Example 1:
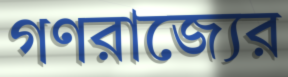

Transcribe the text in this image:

গণরাজ্যের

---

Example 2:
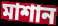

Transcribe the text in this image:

মাশান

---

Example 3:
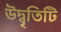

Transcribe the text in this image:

উদ্বৃতিটি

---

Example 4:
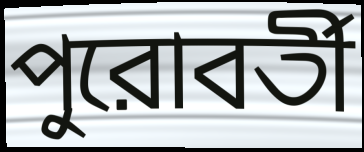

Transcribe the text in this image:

পুরোবর্তী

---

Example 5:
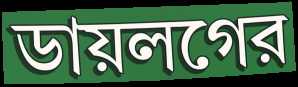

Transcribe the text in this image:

ডায়লগের